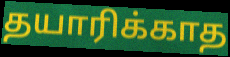
தயாரிக்காத